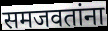
समजवतांना